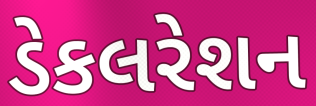
ડેકલરેશન